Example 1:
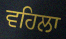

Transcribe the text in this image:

ਵਹਿਲਾ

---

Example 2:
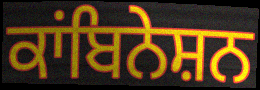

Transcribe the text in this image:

ਕਾਂਬਿਨੇਸ਼ਨ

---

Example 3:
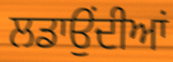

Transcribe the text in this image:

ਲਡਾਉਂਦੀਆਂ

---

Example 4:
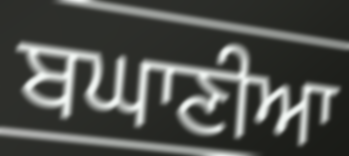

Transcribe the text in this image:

ਬਘਾਣੀਆ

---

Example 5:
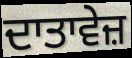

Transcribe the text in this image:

ਦਾਤਾਵੇਜ਼